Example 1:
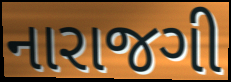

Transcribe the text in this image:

નારાજગી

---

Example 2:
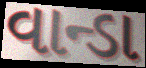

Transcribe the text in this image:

વાન્ડા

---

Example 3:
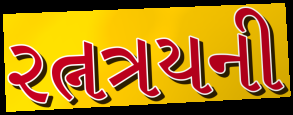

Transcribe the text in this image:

રત્નત્રયની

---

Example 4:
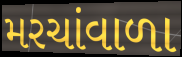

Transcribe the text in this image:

મરચાંવાળા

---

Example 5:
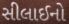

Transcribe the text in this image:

સીલાઈનો